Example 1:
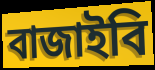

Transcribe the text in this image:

বাজাইবি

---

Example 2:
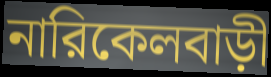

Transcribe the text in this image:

নারিকেলবাড়ী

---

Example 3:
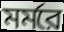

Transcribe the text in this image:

মর্মরে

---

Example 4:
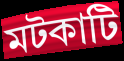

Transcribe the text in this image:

মটকাটি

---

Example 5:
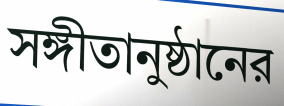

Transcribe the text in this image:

সঙ্গীতানুষ্ঠানের